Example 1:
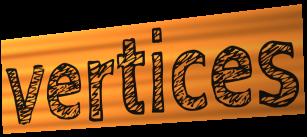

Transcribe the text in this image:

vertices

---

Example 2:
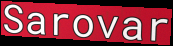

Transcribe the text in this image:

Sarovar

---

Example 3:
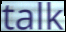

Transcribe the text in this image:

talk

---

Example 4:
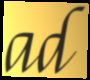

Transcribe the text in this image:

ad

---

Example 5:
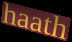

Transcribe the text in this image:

haath